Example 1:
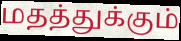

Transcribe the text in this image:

மதத்துக்கும்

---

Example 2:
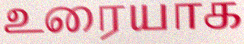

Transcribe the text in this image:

உரையாக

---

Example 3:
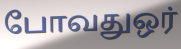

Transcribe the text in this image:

போவதுஒர்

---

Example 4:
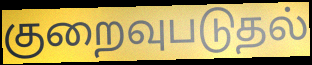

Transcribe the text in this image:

குறைவுபடுதல்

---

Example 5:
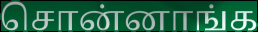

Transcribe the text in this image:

சொன்னாங்க